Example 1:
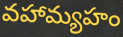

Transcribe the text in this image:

వహామ్యహం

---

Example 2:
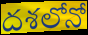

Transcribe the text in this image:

దశలోనో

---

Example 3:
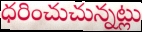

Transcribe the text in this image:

ధరించుచున్నట్లు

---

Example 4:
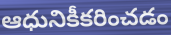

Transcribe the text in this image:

ఆధునికీకరించడం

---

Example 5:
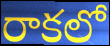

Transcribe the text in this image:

రాకలో